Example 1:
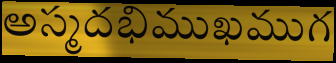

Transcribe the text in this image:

అస్మదభిముఖముగ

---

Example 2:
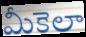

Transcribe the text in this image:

మీకెలా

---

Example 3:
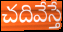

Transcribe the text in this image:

చదివేస్తే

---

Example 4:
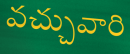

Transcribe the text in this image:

వచ్చువారి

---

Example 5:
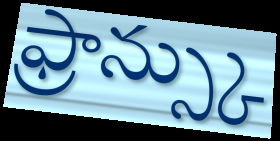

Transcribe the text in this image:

ఫ్రాన్స్కు